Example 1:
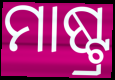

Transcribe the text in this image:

ମାଷ୍ଟ୍ର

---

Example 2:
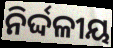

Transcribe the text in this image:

ନିର୍ଦ୍ଦଳୀୟ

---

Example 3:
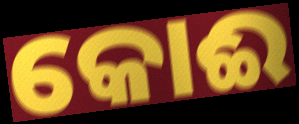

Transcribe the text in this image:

କୋଈ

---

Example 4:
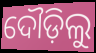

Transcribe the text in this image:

ଦୌଡ଼ିଲୁ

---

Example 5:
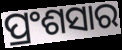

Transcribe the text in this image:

ପ୍ରଂଶସାର